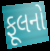
ફૂલનો